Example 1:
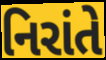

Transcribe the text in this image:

નિરાંતે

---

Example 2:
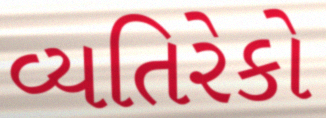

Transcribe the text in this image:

વ્યતિરેકો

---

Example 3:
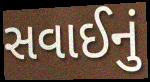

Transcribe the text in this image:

સવાઈનું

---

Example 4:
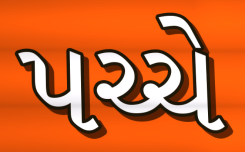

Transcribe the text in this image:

પચ્ચે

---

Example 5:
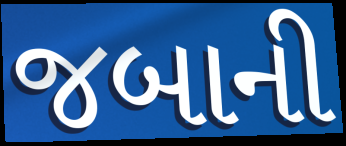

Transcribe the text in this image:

જબાની